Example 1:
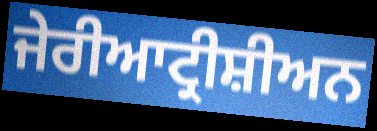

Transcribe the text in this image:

ਜੇਰੀਆਟ੍ਰੀਸ਼ੀਅਨ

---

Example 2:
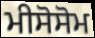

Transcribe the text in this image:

ਮੀਸੋਸੋਮ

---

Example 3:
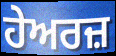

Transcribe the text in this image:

ਹੇਅਰਜ਼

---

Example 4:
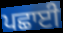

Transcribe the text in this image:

ਪਛਾਈ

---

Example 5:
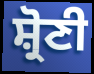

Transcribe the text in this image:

ਸ਼੍ਰੋਣੀ